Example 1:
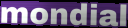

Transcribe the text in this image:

mondial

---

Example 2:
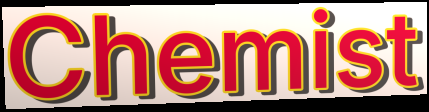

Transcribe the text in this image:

Chemist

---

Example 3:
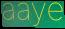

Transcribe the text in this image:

aaye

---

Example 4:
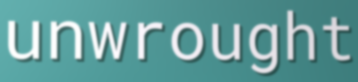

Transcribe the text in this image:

unwrought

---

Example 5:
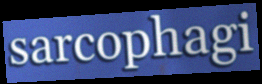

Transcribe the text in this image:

sarcophagi